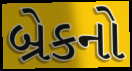
બ્રેકનો